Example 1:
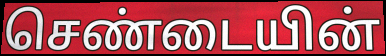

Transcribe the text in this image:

செண்டையின்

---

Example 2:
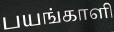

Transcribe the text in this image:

பயங்காளி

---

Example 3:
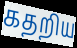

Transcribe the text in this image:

கதறிய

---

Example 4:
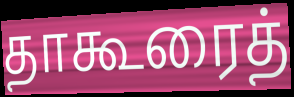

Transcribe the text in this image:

தாகூரைத்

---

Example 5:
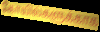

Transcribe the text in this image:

கோயில்களுக்காக